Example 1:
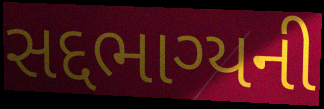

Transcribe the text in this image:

સદ્દભાગ્યની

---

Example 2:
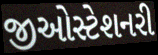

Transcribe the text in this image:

જીઓસ્ટેશનરી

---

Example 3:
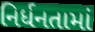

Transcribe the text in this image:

નિર્ધનતામાં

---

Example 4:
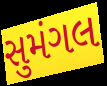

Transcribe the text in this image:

સુમંગલ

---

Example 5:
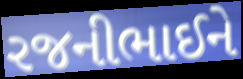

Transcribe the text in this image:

રજનીભાઈને